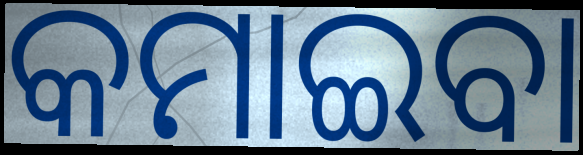
କମାଇବା